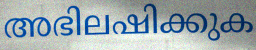
അഭിലഷിക്കുക